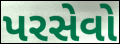
પરસેવો